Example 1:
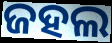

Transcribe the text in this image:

ଜହଲ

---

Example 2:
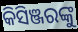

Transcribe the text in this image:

କିସିଞ୍ଜରଙ୍କୁ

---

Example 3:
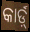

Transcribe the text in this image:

କାର୍ଡ଼୍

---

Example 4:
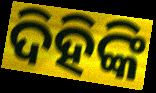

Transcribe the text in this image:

ଦିହିଙ୍କି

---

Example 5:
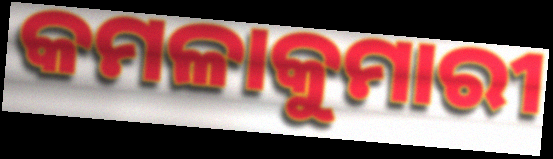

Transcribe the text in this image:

କମଳାକୁମାରୀ